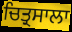
ਚਿਤ੍ਰਸਾਲਾ